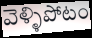
వెళ్ళిపోటం